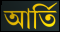
আর্তি